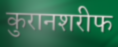
कुरानशरीफ